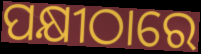
ପକ୍ଷୀଠାରେ